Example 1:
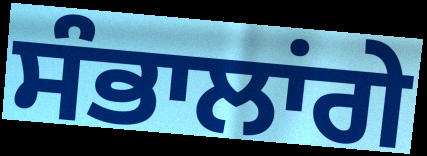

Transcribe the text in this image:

ਸੰਭਾਲਾਂਗੇ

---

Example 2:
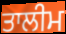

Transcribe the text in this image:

ਤਾਲੀਮ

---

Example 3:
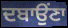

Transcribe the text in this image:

ਦਬਾਉਂਣਾ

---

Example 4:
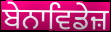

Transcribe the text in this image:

ਬੇਨਾਵਿਡੇਜ਼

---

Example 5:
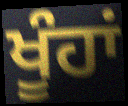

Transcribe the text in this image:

ਖੂੰਹਾਂ